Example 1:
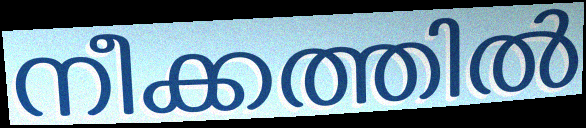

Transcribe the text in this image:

നീക്കത്തിൽ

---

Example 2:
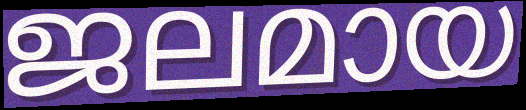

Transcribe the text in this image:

ജലമായ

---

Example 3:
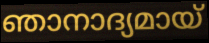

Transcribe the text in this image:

ഞാനാദ്യമായ്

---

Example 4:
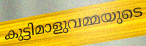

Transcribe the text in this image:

കുട്ടിമാളുവമ്മയുടെ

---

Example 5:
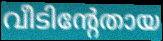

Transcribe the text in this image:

വീടിന്റേതായ